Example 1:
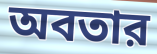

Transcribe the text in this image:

অবতার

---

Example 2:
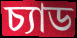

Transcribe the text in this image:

চ্যাড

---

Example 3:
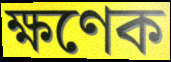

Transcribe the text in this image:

ক্ষণেক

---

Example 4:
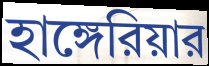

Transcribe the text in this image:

হাঙ্গেরিয়ার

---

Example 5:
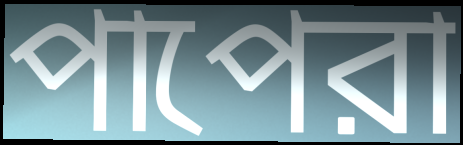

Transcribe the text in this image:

পাপেরা